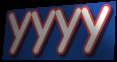
yyyy